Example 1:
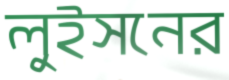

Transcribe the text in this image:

লুইসনের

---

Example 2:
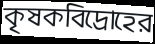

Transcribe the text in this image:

কৃষকবিদ্রোহের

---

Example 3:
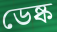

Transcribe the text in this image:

ডেষ্ক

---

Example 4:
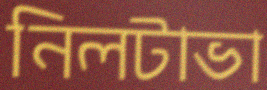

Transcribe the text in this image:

নিলটাভা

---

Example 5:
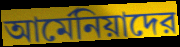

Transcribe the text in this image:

আর্মেনিয়াদের